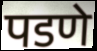
पडणे